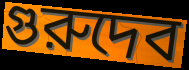
গুরুদেব